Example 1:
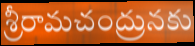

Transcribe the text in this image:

శ్రీరామచంద్రునకు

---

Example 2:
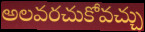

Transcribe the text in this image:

అలవరచుకోవచ్చు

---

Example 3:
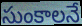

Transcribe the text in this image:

సుంకాలనే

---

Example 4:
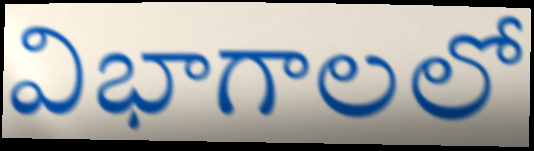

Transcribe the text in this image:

విభాగాలలో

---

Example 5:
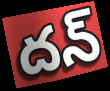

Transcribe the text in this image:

దన్